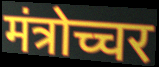
मंत्रोच्चर